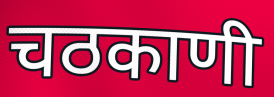
चठकाणी